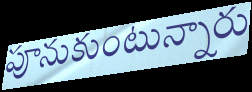
పూనుకుంటున్నారు